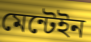
মেন্টেইন